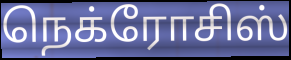
நெக்ரோசிஸ்